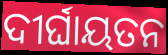
ଦୀର୍ଘାୟତନ